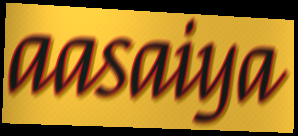
aasaiya